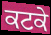
ਕਟਕੇ